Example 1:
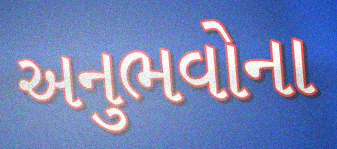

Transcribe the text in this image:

અનુભવોના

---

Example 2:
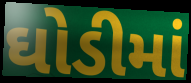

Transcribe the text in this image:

ઘોડીમાં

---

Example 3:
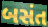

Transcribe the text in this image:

બસંત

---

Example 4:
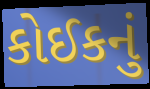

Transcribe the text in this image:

કોઈકનું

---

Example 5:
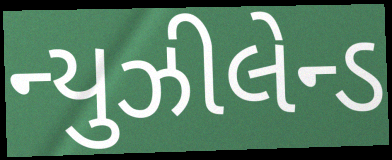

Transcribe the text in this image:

ન્યુઝીલેન્ડ